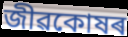
জীৱকোষৰ